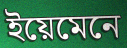
ইয়েমেনে